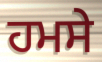
ਹਮਸੇ